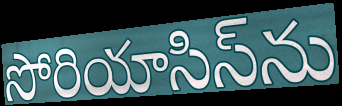
సోరియాసిస్‌ను